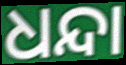
ଧନ୍ଦା